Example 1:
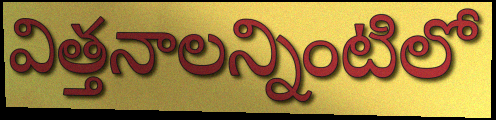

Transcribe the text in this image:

విత్తనాలన్నింటిలో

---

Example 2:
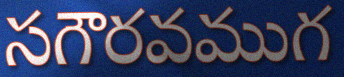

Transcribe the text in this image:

సగౌరవముగ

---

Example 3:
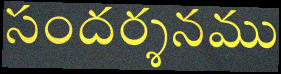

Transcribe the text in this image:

సందర్శనము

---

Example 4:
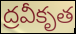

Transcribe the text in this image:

ద్రవీకృత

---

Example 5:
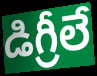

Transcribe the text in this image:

డిగ్రీలే